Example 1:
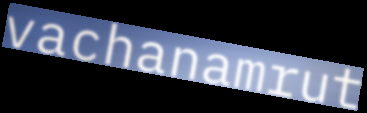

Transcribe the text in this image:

vachanamrut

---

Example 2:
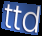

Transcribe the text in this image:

ttd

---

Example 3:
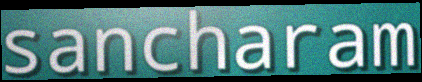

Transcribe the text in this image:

sancharam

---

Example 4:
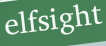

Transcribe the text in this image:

elfsight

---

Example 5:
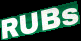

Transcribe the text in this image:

RUBs